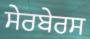
ਸੇਰਬੇਰਸ